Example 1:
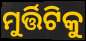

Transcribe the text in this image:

ମୁର୍ତ୍ତିଟିକୁ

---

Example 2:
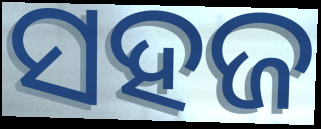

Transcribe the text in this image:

ସହଜ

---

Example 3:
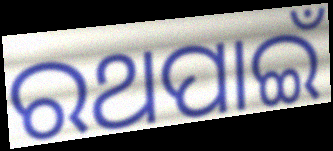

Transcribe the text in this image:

ରଥପାଇଁ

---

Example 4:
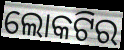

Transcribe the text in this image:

ଲୋକଟିର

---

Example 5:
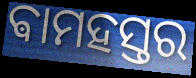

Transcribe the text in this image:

ଵାମହସ୍ତର